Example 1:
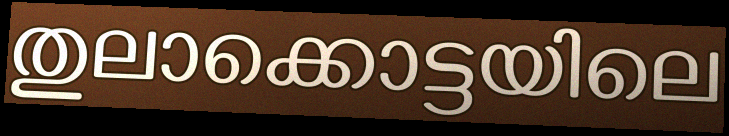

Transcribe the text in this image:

തുലാക്കൊട്ടയിലെ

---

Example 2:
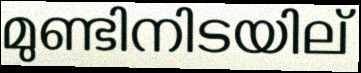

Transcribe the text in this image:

മുണ്ടിനിടയില്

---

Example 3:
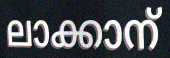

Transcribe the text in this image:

ലാക്കാന്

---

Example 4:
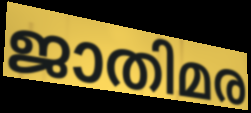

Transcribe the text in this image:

ജാതിമര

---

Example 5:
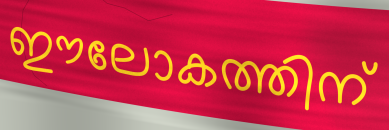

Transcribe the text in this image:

ഈലോകത്തിന്